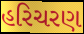
હરિચરણ